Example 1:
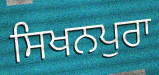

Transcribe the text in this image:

ਸਿਖਨਪੁਰਾ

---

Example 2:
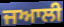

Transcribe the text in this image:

ਜਆਲੀ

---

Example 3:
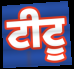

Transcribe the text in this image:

ਟੀਟੂ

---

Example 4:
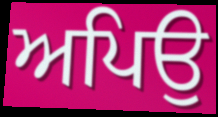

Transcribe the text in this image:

ਅਪਿਉ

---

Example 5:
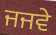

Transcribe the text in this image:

ਜਜਵੇ